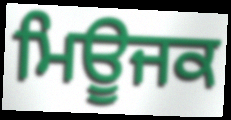
ਮਿਊਜਕ